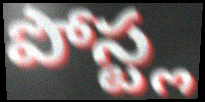
పోస్ట్ల